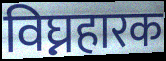
विघ्नहारक